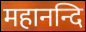
महानन्दि